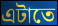
এটাতে